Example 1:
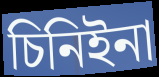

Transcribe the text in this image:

চিনিইনা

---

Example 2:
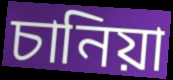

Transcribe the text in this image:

চানিয়া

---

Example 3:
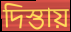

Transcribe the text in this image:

দিস্তায়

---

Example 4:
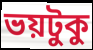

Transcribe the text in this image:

ভয়টুকু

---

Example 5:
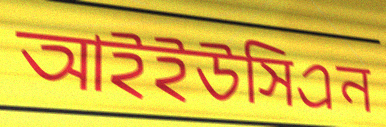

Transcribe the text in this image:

আইইউসিএন